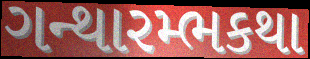
ગન્થારમ્ભકથા